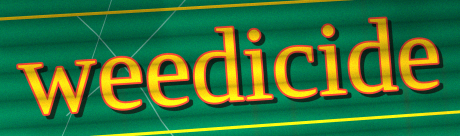
weedicide